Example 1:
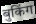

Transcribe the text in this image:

बुकिंग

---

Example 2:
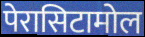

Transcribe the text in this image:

पेरासिटामोल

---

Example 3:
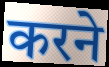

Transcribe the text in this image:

करने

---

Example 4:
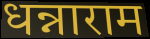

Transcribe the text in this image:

धन्नाराम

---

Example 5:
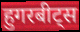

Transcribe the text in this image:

हुगरबीट्स